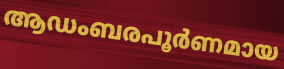
ആഡംബരപൂർണമായ